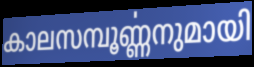
കാലസമ്പൂൎണ്ണനുമായി